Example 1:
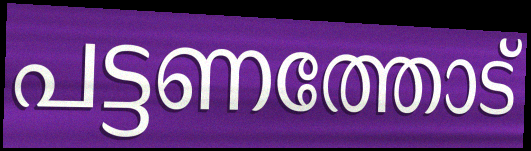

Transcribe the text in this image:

പട്ടണത്തോട്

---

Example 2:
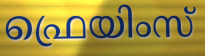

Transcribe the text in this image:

ഫ്രെയിംസ്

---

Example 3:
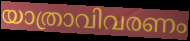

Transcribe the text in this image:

യാത്രാവിവരണം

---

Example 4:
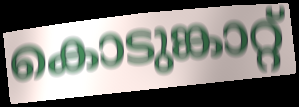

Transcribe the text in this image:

കൊടുങ്കാറ്റ്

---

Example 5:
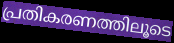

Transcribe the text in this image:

പ്രതികരണത്തിലൂടെ